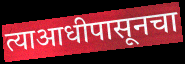
त्याआधीपासूनचा